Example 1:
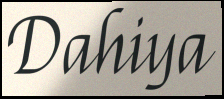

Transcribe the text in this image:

Dahiya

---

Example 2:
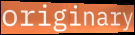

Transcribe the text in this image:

originary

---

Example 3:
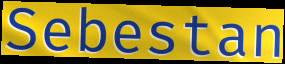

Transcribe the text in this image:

Sebestan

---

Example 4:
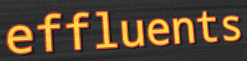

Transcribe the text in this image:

effluents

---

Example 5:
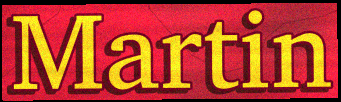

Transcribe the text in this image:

Martin